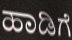
ಹಾಡಿಗೆ